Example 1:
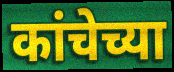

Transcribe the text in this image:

कांचेच्या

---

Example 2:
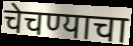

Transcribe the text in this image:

चेचण्याचा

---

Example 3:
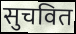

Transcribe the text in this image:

सुचवित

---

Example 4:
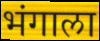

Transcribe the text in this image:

भंगाला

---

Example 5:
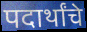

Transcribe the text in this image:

पदार्थांचे